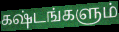
கஷ்டங்களும்